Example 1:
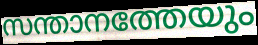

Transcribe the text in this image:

സന്താനത്തേയും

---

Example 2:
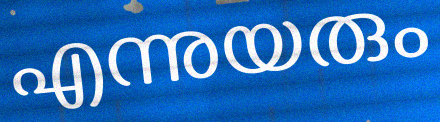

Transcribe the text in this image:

എന്നുയരും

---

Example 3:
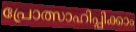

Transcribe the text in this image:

പ്രോത്സാഹിപ്പിക്കാം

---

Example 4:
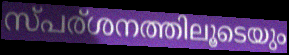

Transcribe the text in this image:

സ്പര്ശനത്തിലൂടെയും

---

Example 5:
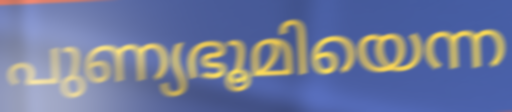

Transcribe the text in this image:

പുണ്യഭൂമിയെന്ന